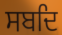
ਸਬਦਿ